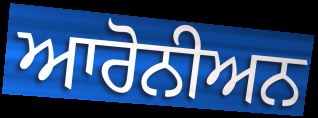
ਆਰੋਨੀਅਨ